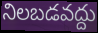
నిలబడవద్దు